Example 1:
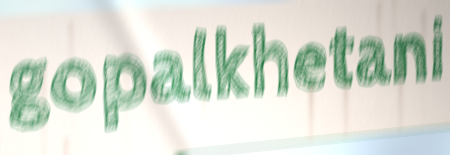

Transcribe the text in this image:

gopalkhetani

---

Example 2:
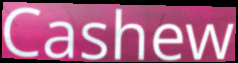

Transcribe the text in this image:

Cashew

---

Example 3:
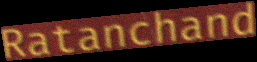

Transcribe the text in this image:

Ratanchand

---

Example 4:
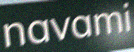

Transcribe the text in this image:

navami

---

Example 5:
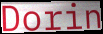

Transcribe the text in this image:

Dorin